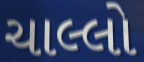
ચાલ્લો